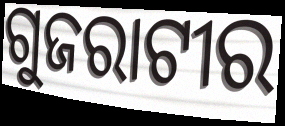
ଗୁଜରାଟୀର